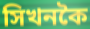
সিখনকৈ